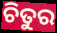
ଚିତୁର